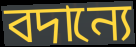
বদান্যে